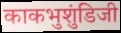
काकभुशुंडिजी